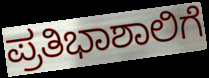
ಪ್ರತಿಭಾಶಾಲಿಗೆ